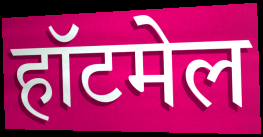
हॉटमेल